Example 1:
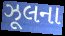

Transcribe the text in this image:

ઝૂલના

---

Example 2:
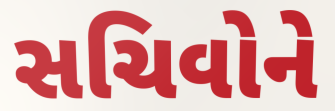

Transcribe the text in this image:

સચિવોને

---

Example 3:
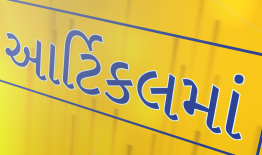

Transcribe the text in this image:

આર્ટિકલમાં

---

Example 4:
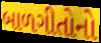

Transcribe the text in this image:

બાળગીતોનો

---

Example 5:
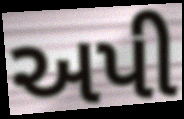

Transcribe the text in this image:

અપી